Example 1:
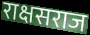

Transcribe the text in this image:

राक्षसराज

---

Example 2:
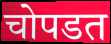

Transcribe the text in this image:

चोपडत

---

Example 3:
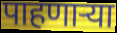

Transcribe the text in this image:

पाहणाऱ्या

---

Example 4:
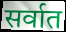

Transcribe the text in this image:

सर्वात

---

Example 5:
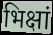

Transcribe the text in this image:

भिक्षां